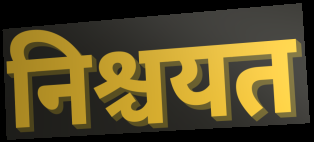
निश्चयत